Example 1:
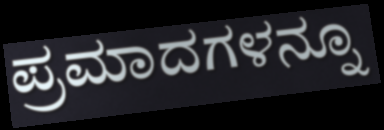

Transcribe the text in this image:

ಪ್ರಮಾದಗಳನ್ನೂ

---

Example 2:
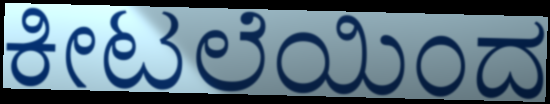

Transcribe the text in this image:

ಕೀಟಲೆಯಿಂದ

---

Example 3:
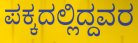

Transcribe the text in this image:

ಪಕ್ಕದಲ್ಲಿದ್ದವರ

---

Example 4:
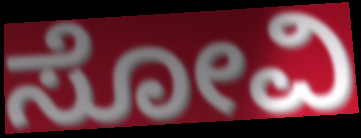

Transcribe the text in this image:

ಸೋವಿ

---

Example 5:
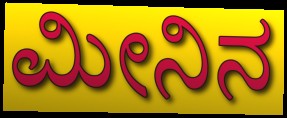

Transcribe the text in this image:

ಮೀನಿನ